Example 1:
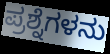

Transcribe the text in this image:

ಪ್ರಶ್ನೆಗಳನು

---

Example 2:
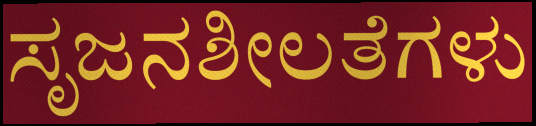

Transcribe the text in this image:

ಸೃಜನಶೀಲತೆಗಳು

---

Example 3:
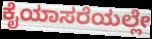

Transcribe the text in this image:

ಕೈಯಾಸರೆಯಲ್ಲೇ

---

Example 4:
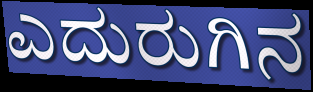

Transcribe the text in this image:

ಎದುರುಗಿನ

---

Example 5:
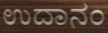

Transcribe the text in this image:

ಉದಾನಂ